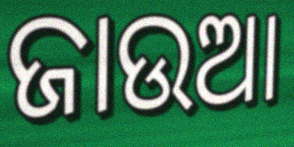
ଜାଉଆ